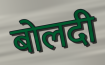
बोलदी